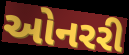
ઓનરરી